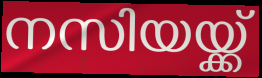
നസിയയ്ക്ക്